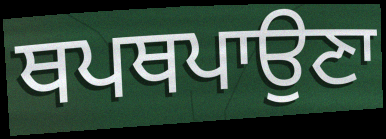
ਥਪਥਪਾਉਣਾ